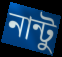
নান্টু